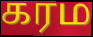
கரம